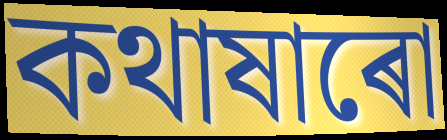
কথাষাৰো